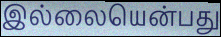
இல்லையென்பது